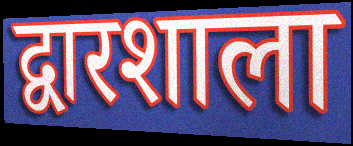
द्वारशाला